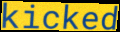
kicked